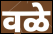
वळे